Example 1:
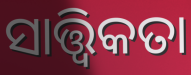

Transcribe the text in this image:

ସାତ୍ତ୍ଵିକତା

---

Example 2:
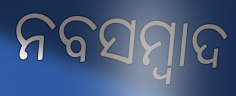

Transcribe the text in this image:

ନବସମ୍ବାଦ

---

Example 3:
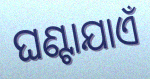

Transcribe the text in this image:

ଘଣ୍ଟାଯାଏଁ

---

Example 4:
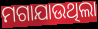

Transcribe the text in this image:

ମଗାଯାଉଥିଲା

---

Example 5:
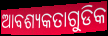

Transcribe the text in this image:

ଆବଶ୍ୟକତାଗୁଡିକ